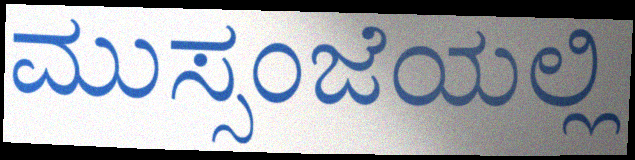
ಮುಸ್ಸಂಜೆಯಲ್ಲಿ